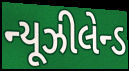
ન્યૂઝીલેન્ડ